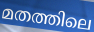
മതത്തിലെ